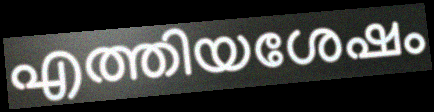
എത്തിയശേഷം